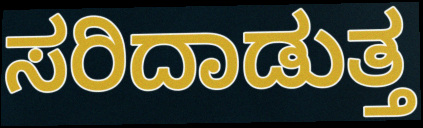
ಸರಿದಾಡುತ್ತ